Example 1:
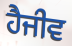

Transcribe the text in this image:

ਹੈਜੀਵ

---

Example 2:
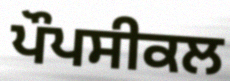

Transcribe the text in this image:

ਪੌਪਸੀਕਲ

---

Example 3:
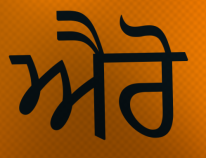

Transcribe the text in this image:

ਐਰੋ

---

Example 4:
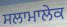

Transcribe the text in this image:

ਸਲਾਮਾਲੇਕ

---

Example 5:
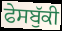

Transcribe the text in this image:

ਫੇਸਬੁੱਕੀ